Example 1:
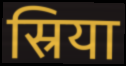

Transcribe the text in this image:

स्रिया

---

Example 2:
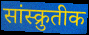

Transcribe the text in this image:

सांस्क्रुतीक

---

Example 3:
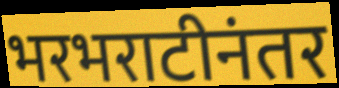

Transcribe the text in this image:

भरभराटीनंतर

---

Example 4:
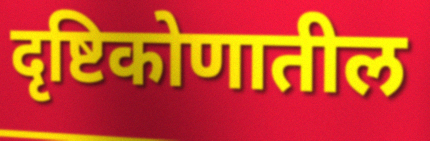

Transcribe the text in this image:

दृष्टिकोणातील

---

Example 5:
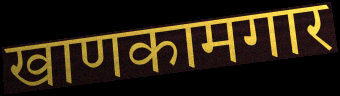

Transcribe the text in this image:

खाणकामगार